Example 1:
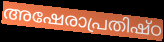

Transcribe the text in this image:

അഷേരാപ്രതിഷ്ഠ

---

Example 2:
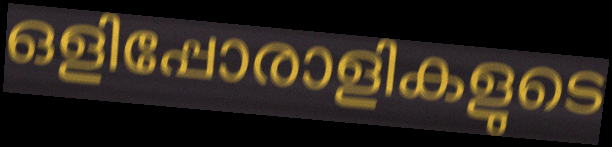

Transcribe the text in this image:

ഒളിപ്പോരാളികളുടെ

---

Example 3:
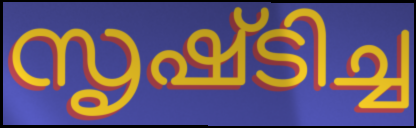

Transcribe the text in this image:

സൃഷ്‌ടിച്ച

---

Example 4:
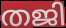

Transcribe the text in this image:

തജി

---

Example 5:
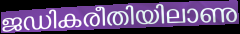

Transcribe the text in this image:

ജഡികരീതിയിലാണു